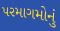
પરમાગમોનું